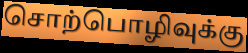
சொற்பொழிவுக்கு